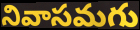
నివాసమగు